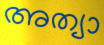
അത്യാ